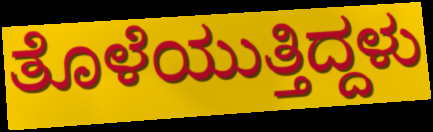
ತೊಳೆಯುತ್ತಿದ್ದಳು